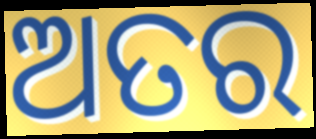
ଅତର